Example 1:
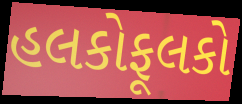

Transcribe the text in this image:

હલકોફૂલકો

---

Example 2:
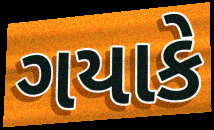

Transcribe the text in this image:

ગયાકે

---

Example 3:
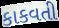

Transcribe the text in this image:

કાકવતી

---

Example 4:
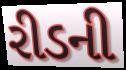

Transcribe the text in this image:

રીડની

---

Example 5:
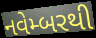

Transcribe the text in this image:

નવેમ્બરથી